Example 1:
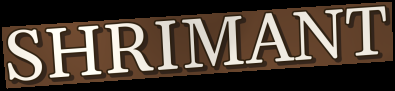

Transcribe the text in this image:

SHRIMANT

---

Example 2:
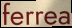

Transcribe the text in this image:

ferrea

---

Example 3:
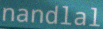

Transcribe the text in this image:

nandlal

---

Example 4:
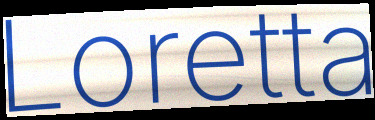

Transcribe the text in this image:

Loretta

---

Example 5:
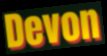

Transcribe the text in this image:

Devon